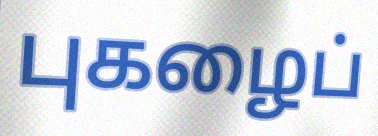
புகழைப்